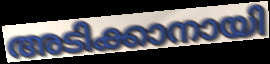
അടിക്കാനായി